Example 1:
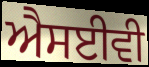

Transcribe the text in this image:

ਐਸਈਵੀ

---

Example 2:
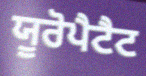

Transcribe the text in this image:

ਯੂਰੋਪੈਟੈਟ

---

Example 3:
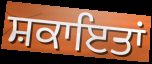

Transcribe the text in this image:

ਸ਼ਕਾਇਤਾਂ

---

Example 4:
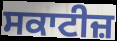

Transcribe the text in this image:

ਸਕਾਟੀਜ਼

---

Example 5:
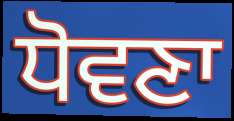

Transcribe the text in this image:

ਧੋਵਣਾ